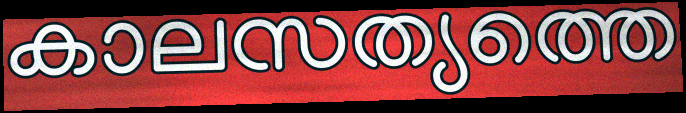
കാലസത്യത്തെ